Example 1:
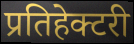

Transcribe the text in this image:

प्रतिहेक्टरी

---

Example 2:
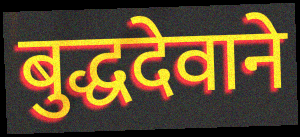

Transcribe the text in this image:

बुद्धदेवाने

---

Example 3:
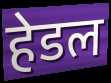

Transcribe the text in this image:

हेडल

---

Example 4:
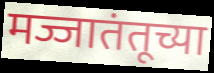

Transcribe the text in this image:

मज्जातंतूच्या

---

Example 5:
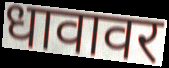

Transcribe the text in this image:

धावावर